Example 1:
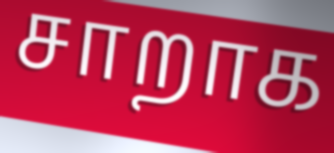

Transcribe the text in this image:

சாறாக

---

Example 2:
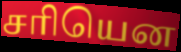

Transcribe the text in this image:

சரியென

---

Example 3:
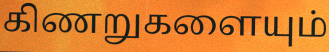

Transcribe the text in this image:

கிணறுகளையும்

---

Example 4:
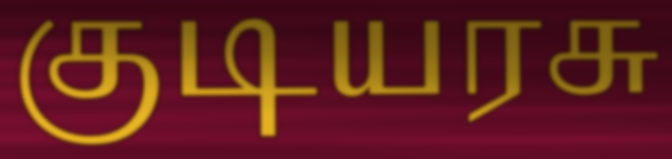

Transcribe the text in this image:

குடியரசு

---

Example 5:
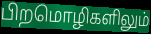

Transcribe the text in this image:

பிறமொழிகளிலும்